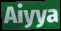
Aiyya